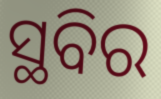
ସ୍ଥବିର